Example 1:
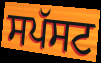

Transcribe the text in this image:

ਸਪੱਸਟ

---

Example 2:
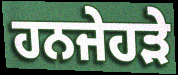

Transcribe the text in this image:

ਹਨਜੇਹੜੇ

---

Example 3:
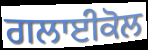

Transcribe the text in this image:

ਗਲਾਈਕੋਲ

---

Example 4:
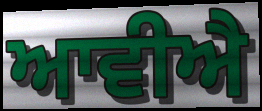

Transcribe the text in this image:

ਆਵੀਐ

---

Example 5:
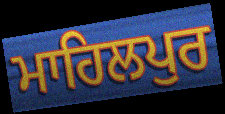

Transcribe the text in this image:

ਮਾਹਿਲਪੁਰ